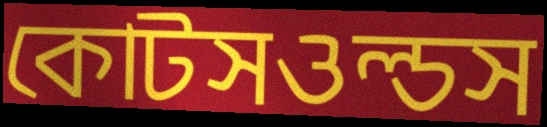
কোটসওল্ডস